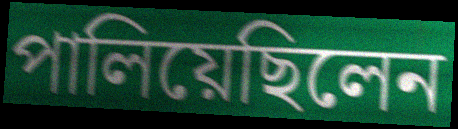
পালিয়েছিলেন